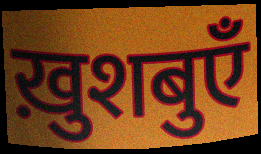
ख़ुशबुएँ